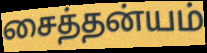
சைத்தன்யம்